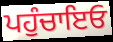
ਪਹੁੰਚਾਇਓ